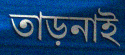
তাড়নাই